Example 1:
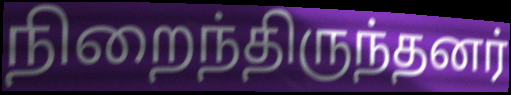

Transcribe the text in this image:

நிறைந்திருந்தனர்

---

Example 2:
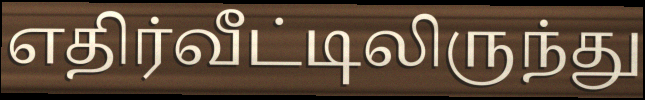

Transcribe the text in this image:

எதிர்வீட்டிலிருந்து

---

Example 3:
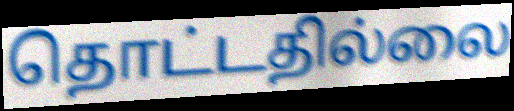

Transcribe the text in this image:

தொட்டதில்லை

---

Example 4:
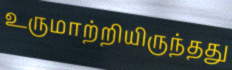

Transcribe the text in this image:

உருமாற்றியிருந்தது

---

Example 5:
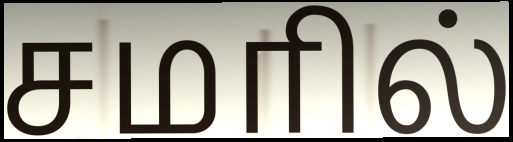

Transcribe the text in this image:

சமரில்